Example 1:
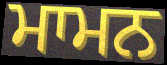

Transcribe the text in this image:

ਮਾਮਨ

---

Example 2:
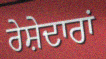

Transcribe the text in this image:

ਰੇਸ਼ੇਦਾਰਾਂ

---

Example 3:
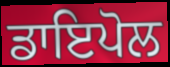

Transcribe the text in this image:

ਡਾਇਪੋਲ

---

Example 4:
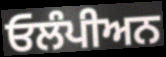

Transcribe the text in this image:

ਓਲੰਪੀਅਨ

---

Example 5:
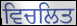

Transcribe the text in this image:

ਵਿਚਲਿਤ